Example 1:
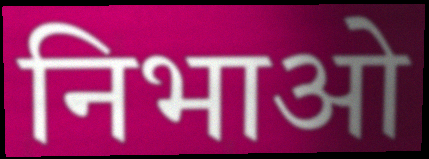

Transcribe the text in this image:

निभाओ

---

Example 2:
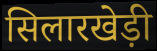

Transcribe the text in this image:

सिलारखेड़ी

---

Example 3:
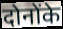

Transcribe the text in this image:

दोनोंके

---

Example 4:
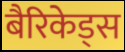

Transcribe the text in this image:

बैरिकेड्स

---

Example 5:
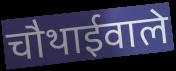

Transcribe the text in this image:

चौथाईवाले